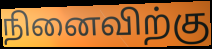
நினைவிற்கு